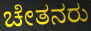
ಚೇತನರು